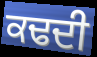
ਕਢਦੀ